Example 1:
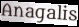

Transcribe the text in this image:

Anagalis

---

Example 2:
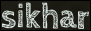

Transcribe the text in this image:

sikhar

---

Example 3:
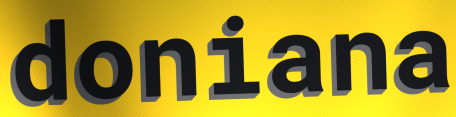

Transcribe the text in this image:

doniana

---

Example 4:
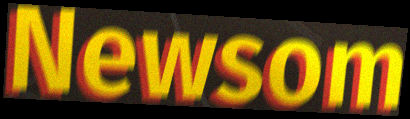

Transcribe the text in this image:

Newsom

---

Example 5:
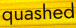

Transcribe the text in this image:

quashed